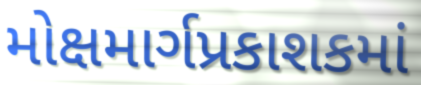
મોક્ષમાર્ગપ્રકાશકમાં